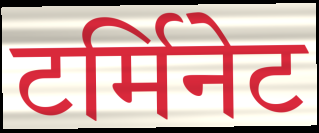
टर्मिनेट